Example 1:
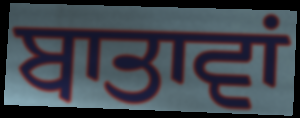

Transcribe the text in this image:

ਬਾਤਾਵਾਂ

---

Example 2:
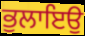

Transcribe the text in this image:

ਭੁਲਾਇਉ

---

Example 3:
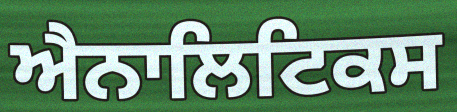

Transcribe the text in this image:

ਐਨਾਲਿਟਿਕਸ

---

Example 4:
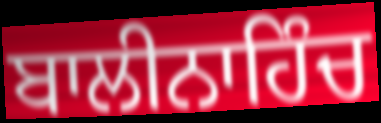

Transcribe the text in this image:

ਬਾਲੀਨਾਹਿੰਚ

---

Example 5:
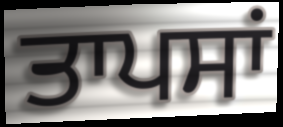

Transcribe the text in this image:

ਤਾਪਸਾਂ